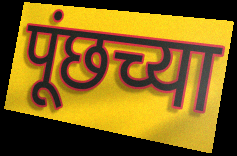
पूंछच्या